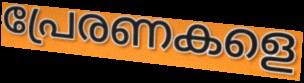
പ്രേരണകളെ